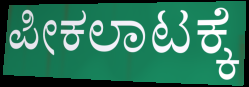
ಪೀಕಲಾಟಕ್ಕೆ